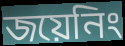
জয়েনিং